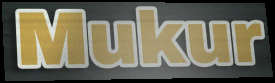
Mukur